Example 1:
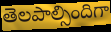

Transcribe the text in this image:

తెలపాల్సిందిగా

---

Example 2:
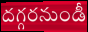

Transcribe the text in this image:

దగ్గరనుండీ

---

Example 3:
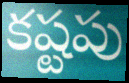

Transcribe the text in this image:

కష్టపు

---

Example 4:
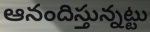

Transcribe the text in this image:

ఆనందిస్తున్నట్టు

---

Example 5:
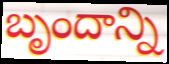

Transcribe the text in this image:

బృందాన్ని